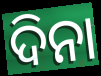
ଦିନା